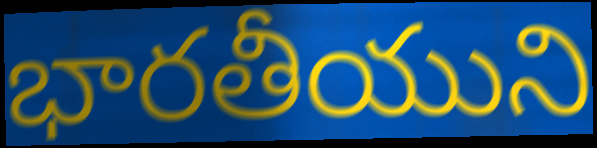
భారతీయుని